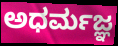
ಅಧರ್ಮಜ್ಞ